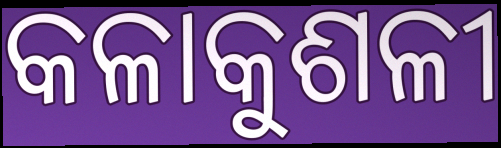
କଳାକୁଶଳୀ